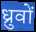
ध्रुवों